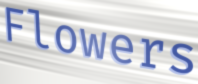
Flowers